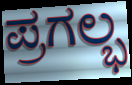
ಪ್ರಗಲ್ಭ